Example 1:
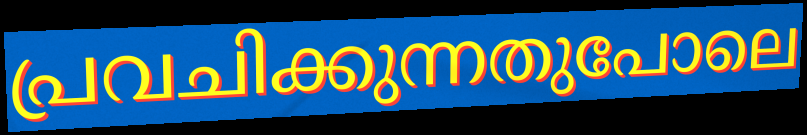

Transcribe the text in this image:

പ്രവചിക്കുന്നതുപോലെ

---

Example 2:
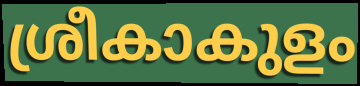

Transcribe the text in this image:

ശ്രീകാകുളം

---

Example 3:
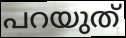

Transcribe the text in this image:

പറയുത്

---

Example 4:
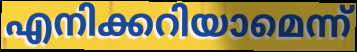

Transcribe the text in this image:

എനിക്കറിയാമെന്ന്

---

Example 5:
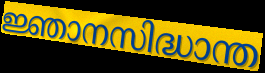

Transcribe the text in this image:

ജ്ഞാനസിദ്ധാന്ത